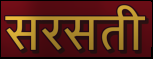
सरसती